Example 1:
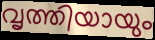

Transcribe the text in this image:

വൃത്തിയായും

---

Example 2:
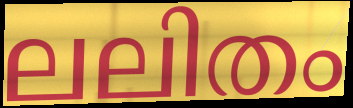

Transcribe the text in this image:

ലലിതം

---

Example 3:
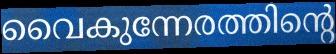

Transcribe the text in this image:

വൈകുന്നേരത്തിന്റെ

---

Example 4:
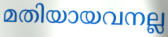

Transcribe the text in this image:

മതിയായവനല്ല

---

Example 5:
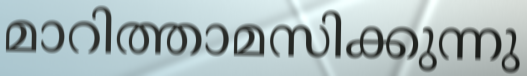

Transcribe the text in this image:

മാറിത്താമസിക്കുന്നു